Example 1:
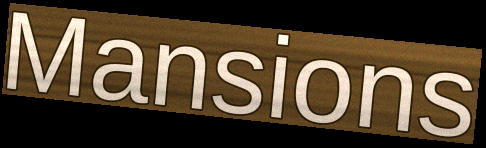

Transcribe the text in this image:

Mansions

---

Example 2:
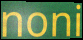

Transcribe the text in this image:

noni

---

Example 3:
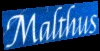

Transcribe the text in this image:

Malthus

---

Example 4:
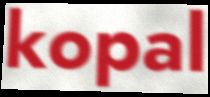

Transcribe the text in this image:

kopal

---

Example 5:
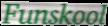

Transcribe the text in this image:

Funskool